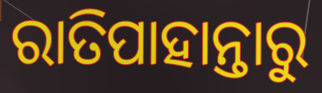
ରାତିପାହାନ୍ତାରୁ